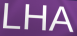
LHA